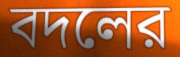
বদলের